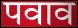
पवाव